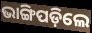
ଭାଙ୍ଗିପଡ଼ିଲେ